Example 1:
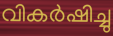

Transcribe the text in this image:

വികർഷിച്ചു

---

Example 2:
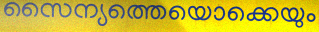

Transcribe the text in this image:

സൈന്യത്തെയൊക്കെയും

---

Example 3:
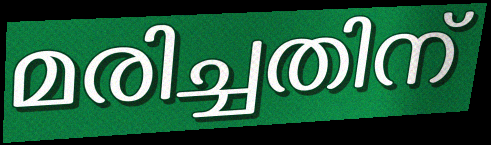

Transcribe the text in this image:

മരിച്ചതിന്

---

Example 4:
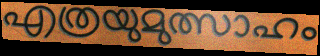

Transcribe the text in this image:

എത്രയുമുത്സാഹം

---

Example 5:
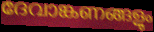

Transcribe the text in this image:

ദേവാങ്കണങ്ങളും